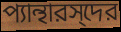
প্যান্থারস্‌দের